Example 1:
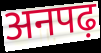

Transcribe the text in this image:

अनपढ़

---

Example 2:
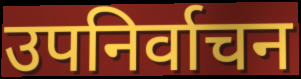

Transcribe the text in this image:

उपनिर्वाचन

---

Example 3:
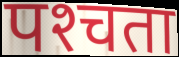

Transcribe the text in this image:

पश्चता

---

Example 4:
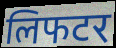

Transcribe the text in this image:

लिफटर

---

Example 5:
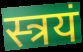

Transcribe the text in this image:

स्त्रयं